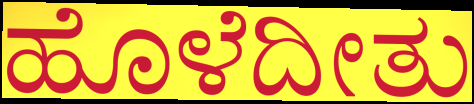
ಹೊಳೆದೀತು